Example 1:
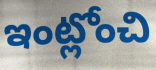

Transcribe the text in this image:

ఇంట్లోంచి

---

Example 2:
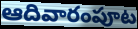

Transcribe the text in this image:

ఆదివారంపూట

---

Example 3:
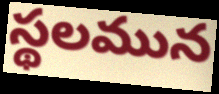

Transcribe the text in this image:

స్థలమున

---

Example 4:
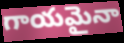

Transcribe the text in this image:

గాయమైనా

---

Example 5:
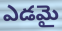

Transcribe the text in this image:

ఎడమై